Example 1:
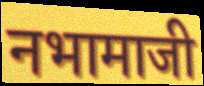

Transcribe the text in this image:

नभामाजी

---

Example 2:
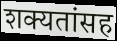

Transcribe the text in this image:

शक्यतांसह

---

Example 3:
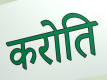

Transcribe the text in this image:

करोति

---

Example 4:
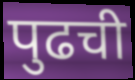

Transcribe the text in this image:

पुढची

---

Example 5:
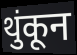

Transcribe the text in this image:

थुंकून